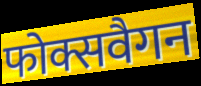
फोक्सवैगन